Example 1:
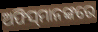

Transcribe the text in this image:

ଅଫିସ୍‌ମାନଙ୍କରେ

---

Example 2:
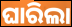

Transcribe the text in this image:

ଘାରିଲା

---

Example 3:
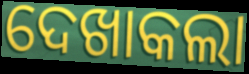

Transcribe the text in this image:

ଦେଖାକଲା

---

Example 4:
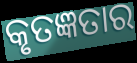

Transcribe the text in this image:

କୃତଜ୍ଞତାର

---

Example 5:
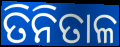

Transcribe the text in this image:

ତିନିତାଳ